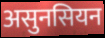
असुनसियन